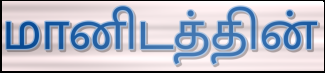
மானிடத்தின்